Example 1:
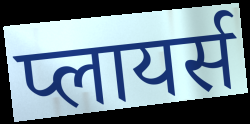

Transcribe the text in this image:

प्लायर्स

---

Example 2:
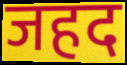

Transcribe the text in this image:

जहद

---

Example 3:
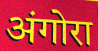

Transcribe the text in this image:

अंगोरा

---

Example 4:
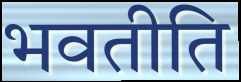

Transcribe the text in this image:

भवतीति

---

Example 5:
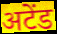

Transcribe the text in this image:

अटेंड